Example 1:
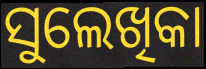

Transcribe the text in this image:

ସୁଲେଖିକା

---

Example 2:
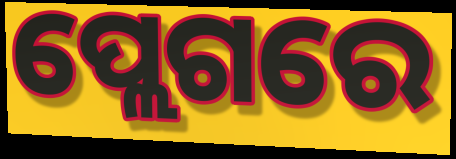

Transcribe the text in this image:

ପ୍ଲେଗରେ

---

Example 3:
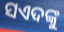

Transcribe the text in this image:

ସଏଦଙ୍କୁ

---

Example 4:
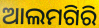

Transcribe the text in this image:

ଆଲମଗିରି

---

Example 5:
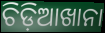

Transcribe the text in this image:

ଚିଡ଼ିଆଖାନା